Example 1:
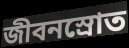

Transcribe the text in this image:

জীবনস্রোত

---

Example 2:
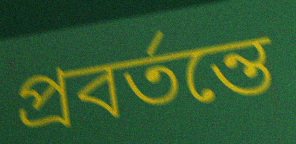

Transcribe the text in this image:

প্রবর্তন্তে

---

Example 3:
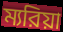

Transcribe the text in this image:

ম্যরিয়া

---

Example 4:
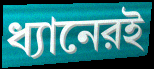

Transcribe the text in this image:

ধ্যানেরই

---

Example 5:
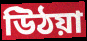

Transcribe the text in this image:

উিঠয়া